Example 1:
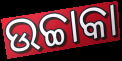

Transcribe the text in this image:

ଉଚ୍ଚାକା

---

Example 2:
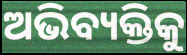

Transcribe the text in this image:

ଅଭିବ୍ୟକ୍ତିକୁ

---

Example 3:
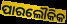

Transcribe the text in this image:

ପାରଲୌକିକ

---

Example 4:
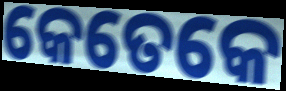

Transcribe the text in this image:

କେତେକେ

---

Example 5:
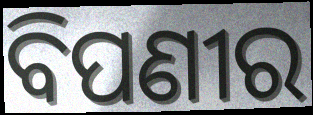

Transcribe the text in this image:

ବିପଣୀର